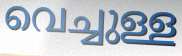
വെച്ചുള്ള